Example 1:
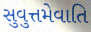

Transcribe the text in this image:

સુવુત્તમેવાતિ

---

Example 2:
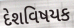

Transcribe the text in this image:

દેશવિષયક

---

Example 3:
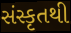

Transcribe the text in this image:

સંસ્કૃતથી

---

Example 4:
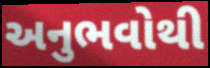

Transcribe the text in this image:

અનુભવોથી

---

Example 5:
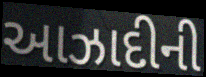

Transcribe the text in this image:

આઝાદીની